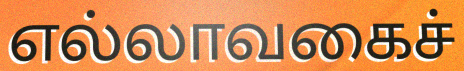
எல்லாவகைச்